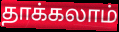
தாக்கலாம்